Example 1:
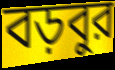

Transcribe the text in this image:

বড়বুর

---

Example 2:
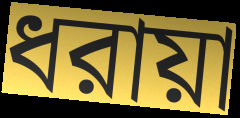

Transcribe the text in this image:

ধরায়া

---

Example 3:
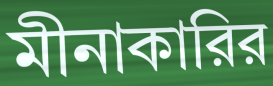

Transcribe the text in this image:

মীনাকারির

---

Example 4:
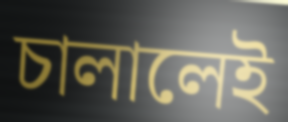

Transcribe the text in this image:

চালালেই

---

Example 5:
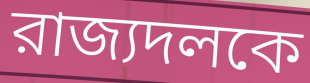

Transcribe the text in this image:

রাজ্যদলকে